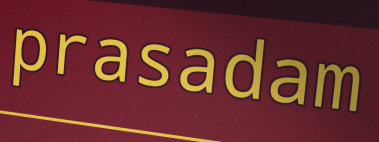
prasadam